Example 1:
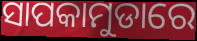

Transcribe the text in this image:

ସାପକାମୁଡାରେ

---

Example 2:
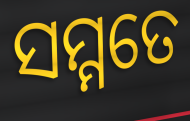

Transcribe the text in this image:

ସମ୍ମତେ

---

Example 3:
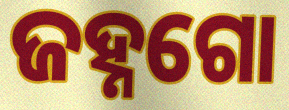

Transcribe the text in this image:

ଜହ୍ନଗୋ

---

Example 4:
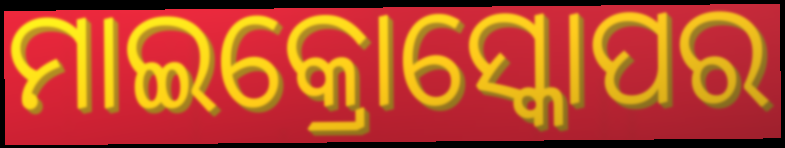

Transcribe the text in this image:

ମାଇକ୍ରୋସ୍କୋପର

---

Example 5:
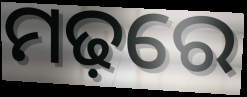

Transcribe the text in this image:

ମଢ଼ରେ